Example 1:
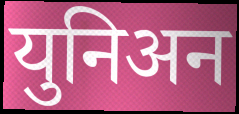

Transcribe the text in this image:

युनिअन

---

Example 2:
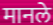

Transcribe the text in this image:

मानले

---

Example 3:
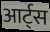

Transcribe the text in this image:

आर्ट्स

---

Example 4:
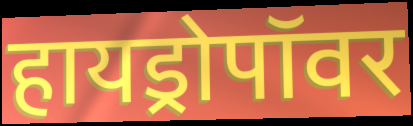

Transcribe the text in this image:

हायड्रोपॉवर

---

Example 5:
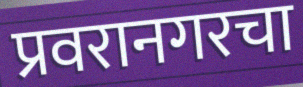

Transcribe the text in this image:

प्रवरानगरचा